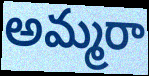
అమ్మరా